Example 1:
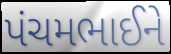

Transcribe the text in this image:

પંચમભાઈને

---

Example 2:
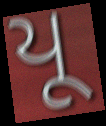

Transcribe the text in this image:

યૂ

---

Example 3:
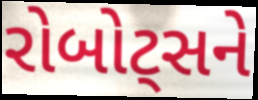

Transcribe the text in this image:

રોબોટ્સને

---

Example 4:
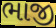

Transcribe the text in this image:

ભાજી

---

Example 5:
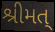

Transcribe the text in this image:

શ્રીમત્